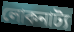
লোকনাট্য